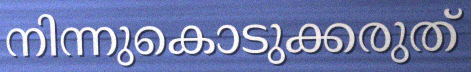
നിന്നുകൊടുക്കരുത്